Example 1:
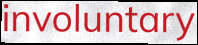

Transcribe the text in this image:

involuntary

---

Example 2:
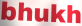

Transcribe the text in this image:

bhukh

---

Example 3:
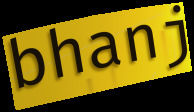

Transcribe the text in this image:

bhanj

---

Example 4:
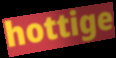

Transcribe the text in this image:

hottige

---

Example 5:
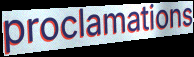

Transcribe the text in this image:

proclamations